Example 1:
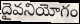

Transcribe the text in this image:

దైవనియోగం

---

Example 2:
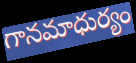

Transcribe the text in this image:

గానమాధుర్యం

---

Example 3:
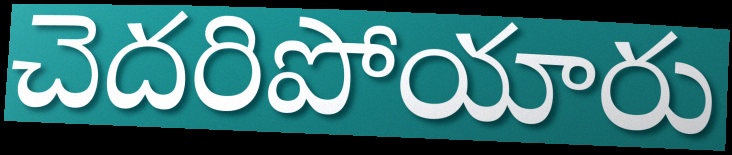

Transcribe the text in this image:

చెదరిపోయారు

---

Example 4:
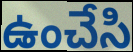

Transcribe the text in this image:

ఉంచేసి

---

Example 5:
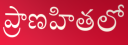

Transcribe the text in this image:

ప్రాణహితలో